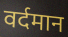
वर्दमान